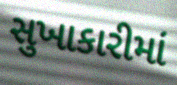
સુખાકારીમાં